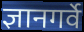
ज्ञानगर्वे